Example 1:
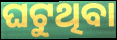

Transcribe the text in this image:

ଘଟୁଥିବା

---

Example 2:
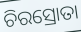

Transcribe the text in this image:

ଚିରସ୍ରୋତା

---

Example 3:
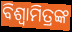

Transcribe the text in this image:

ବିଶ୍ଵାମିତ୍ରଙ୍କ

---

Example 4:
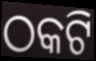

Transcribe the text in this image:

ଠକଟି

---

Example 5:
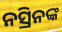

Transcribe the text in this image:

ନସ୍ରିନଙ୍କ